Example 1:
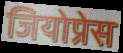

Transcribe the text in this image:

जियोप्रेस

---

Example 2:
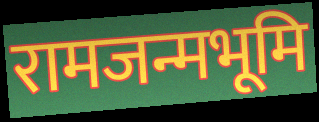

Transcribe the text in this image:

रामजन्मभूमि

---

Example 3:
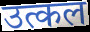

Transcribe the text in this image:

उत्कल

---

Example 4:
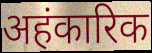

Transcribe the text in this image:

अहंकारिक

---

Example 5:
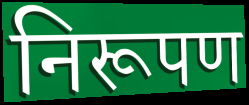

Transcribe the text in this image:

निरूपण